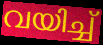
വയിച്ച്